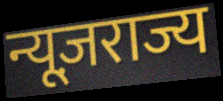
न्यूज़राज्य